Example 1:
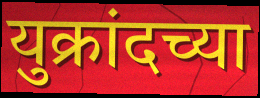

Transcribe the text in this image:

युक्रांदच्या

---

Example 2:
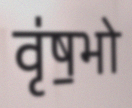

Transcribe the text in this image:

वृ॑ष॒भो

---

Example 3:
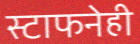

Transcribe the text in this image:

स्टाफनेही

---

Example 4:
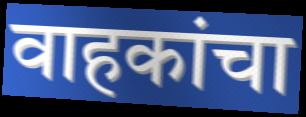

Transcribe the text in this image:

वाहकांचा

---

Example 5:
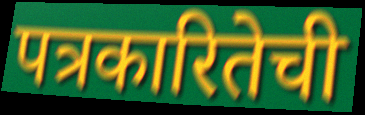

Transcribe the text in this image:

पत्रकारितेची